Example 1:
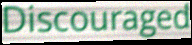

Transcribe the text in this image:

Discouraged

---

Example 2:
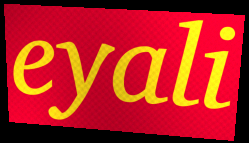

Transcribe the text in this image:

eyali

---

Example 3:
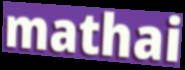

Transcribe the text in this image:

mathai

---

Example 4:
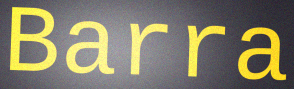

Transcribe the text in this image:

Barra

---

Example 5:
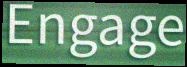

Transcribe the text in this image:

Engage